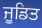
ਜੂਡਿਤ